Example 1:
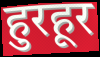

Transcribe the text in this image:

हुरहूर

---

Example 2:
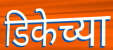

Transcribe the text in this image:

डिकेच्या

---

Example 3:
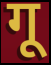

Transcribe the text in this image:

गू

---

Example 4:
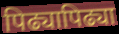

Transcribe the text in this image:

पिढ्यापिढ्या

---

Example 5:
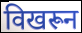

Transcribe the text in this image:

विखरून